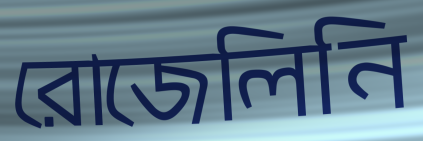
রোজেলিনি